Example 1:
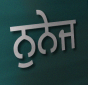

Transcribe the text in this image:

ਨੁਨੇਜ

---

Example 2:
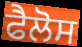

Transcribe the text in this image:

ਫੈਲੋਸ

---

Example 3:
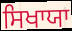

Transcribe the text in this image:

ਸਿਖਾਯਾ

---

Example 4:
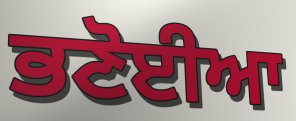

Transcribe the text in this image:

ਭਣੋਈਆ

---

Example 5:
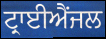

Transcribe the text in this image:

ਟ੍ਰਾਈਐਂਜਲ